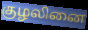
குழலினை